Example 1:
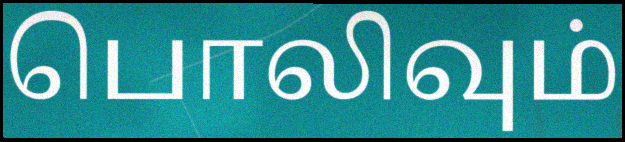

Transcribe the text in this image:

பொலிவும்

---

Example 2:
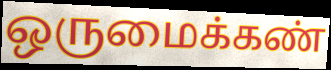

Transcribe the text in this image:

ஒருமைக்கண்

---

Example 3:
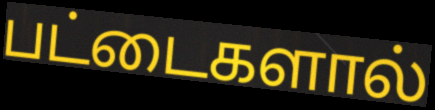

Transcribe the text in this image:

பட்டைகளால்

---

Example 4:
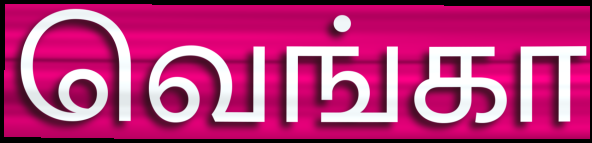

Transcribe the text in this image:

வெங்கா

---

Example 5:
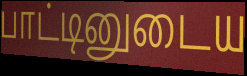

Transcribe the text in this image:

பாட்டினுடைய